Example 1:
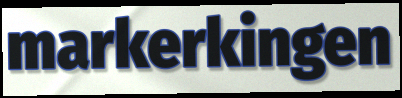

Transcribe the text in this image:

markerkingen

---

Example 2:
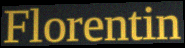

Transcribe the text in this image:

Florentin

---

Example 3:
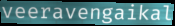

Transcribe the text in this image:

veeravengaikal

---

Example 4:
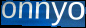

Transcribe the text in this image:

onnyo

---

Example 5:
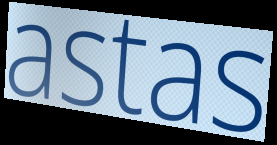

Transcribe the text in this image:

astas